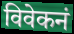
विवेकनं